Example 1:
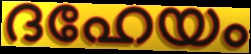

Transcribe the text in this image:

ദഹേയം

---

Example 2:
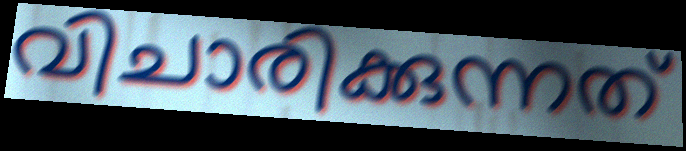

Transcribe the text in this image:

വിചാരിക്കുന്നത്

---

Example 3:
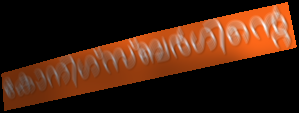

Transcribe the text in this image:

കോനിഗ്സ്ബർഗിന്റെ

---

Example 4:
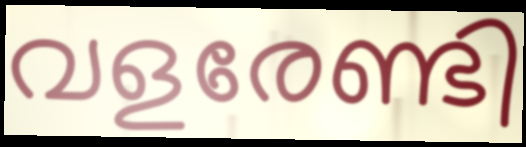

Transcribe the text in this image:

വളരേണ്ടി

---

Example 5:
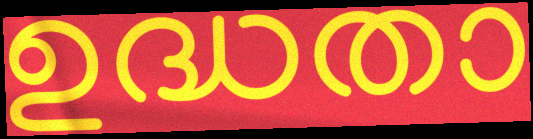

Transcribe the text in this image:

ഉദ്ധതാ